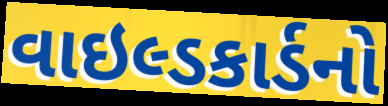
વાઇલ્ડકાર્ડનો